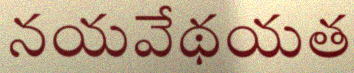
నయవేథయత